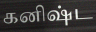
கனிஷ்ட